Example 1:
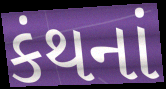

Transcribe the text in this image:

કંથનાં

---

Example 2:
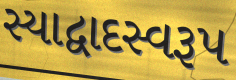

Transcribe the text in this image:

સ્યાદ્વાદસ્વરૂપ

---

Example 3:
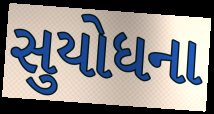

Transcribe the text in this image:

સુયોધના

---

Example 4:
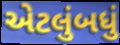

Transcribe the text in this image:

એટલુંબધું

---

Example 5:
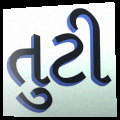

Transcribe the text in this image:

તુટી